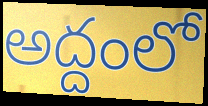
అద్దంలో